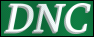
DNC